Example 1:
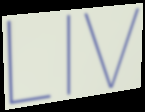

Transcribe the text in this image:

LIV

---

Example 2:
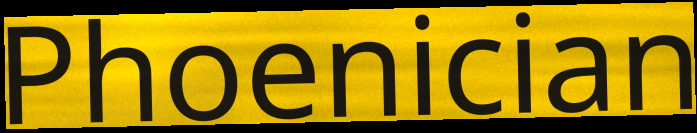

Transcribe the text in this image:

Phoenician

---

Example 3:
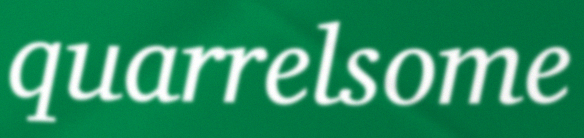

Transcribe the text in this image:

quarrelsome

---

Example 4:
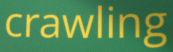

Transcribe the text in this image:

crawling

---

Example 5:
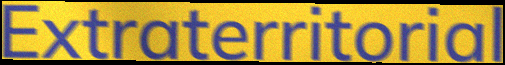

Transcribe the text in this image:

Extraterritorial